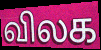
விலக